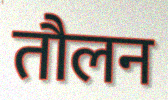
तौलन